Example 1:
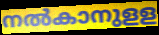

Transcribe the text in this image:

നൽകാനുളള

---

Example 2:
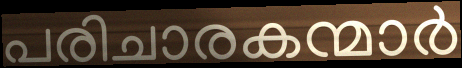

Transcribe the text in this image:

പരിചാരകന്മാർ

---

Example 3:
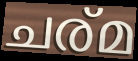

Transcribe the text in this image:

ചര്മ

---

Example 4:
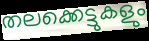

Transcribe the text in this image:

തലക്കെട്ടുകളും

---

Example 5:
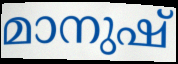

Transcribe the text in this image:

മാനുഷ്